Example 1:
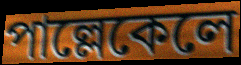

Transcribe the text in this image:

পাল্লেকেলে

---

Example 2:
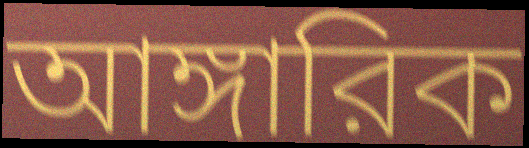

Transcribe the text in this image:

আঙ্গারিক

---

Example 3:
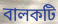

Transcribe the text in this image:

বালকটি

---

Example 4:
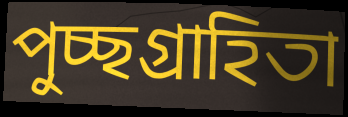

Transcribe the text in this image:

পুচ্ছগ্রাহিতা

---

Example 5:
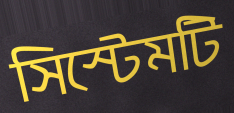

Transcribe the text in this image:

সিস্টেমটি